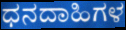
ಧನದಾಹಿಗಳ